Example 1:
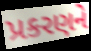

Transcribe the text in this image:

પ્રકરણને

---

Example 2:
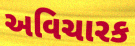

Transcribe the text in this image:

અવિચારક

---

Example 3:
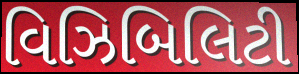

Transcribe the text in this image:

વિઝિબિલિટી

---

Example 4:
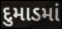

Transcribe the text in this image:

દુમાડમાં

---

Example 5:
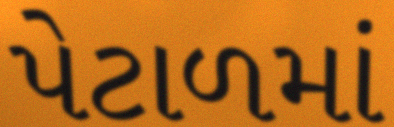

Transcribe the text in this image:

પેટાળમાં